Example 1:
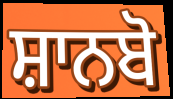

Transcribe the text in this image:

ਸ਼ਾਨਬੋ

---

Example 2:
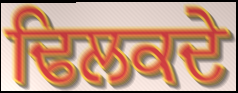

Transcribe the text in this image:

ਢਿਲਕਦੇ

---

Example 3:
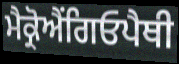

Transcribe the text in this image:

ਮੈਕ੍ਰੋਐਂਗਿਓਪੈਥੀ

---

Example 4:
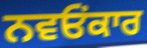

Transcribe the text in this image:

ਨਵਓਂਕਾਰ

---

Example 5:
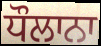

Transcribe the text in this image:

ਧੌਲਾਨਾ